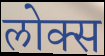
लोक्स